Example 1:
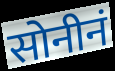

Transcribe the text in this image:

सोनीनं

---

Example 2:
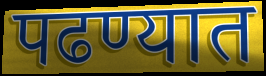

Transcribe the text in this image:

पढण्यात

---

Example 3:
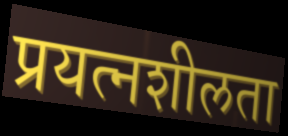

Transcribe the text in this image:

प्रयत्नशीलता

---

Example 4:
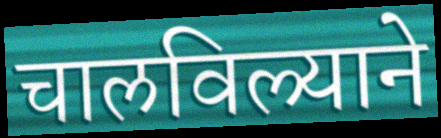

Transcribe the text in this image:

चालविल्याने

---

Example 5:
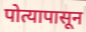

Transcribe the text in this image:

पोत्यापासून